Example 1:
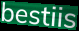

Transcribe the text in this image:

bestiis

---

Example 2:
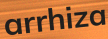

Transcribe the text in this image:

arrhiza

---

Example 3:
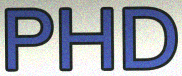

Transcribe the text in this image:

PHD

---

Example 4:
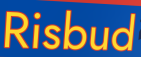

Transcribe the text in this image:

Risbud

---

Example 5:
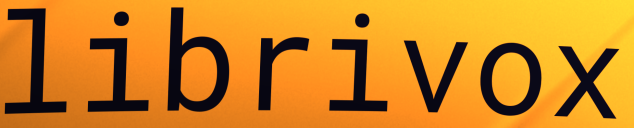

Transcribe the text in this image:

librivox